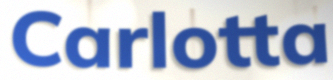
Carlotta